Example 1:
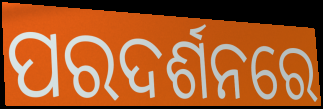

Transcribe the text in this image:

ପରଦର୍ଶନରେ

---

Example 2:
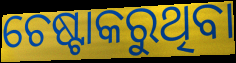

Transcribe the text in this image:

ଚେଷ୍ଟାକରୁଥିବା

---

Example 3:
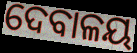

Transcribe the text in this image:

ଦେବାଳୟ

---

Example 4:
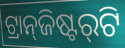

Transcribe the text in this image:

ଟ୍ରାନ୍‌ଜିଷ୍ଟର୍‌ଟି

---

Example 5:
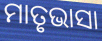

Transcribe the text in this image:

ମାତୃଭାସା